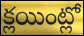
క్లయింట్లో